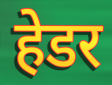
हेडर